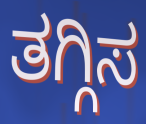
ತಗ್ಗಿಸ